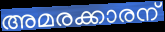
അമരക്കാരന്